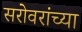
सरोवरांच्या